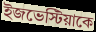
ইজভেস্টিয়াকে